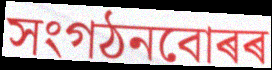
সংগঠনবোৰৰ